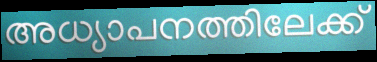
അധ്യാപനത്തിലേക്ക്